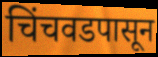
चिंचवडपासून